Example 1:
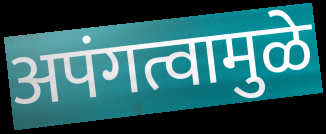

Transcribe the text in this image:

अपंगत्वामुळे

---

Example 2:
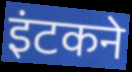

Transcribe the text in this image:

इंटकने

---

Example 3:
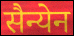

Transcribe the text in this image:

सैन्येन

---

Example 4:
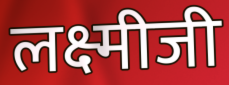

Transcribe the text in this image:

लक्ष्मीजी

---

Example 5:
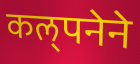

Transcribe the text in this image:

कल्पनेने